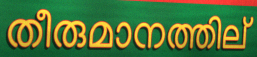
തീരുമാനത്തില്